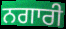
ਨਗਾਰੀ